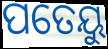
ପତେୟୁ